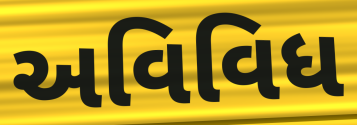
અવિવિધ